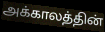
அக்காலத்தின்